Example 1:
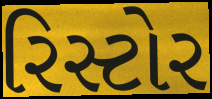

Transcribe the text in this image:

રિસ્ટોર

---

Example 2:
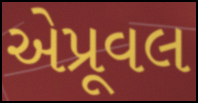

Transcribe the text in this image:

એપ્રૂવલ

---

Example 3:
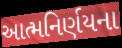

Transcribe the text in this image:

આત્મનિર્ણયના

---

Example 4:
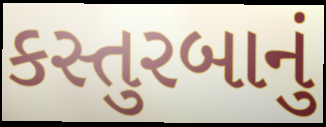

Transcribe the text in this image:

કસ્તુરબાનું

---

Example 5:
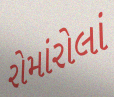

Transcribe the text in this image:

રોમાંરોલાં